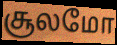
சூலமோ